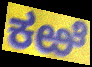
ಕಱೆ